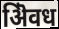
ऄिवध